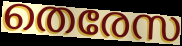
തെരേസ